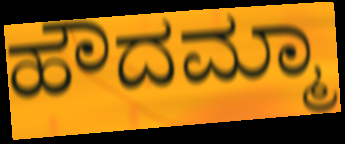
ಹೌದಮ್ಮಾ